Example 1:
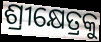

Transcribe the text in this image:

ଶ୍ରୀକ୍ଷେତ୍ରକୁ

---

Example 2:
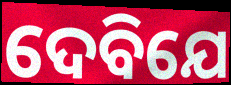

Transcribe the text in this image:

ଦେବିଯେ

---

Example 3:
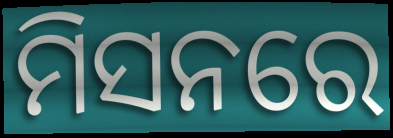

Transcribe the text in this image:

ମିସନରେ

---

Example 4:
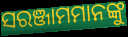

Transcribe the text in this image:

ସରଞ୍ଜାମମାନଙ୍କୁ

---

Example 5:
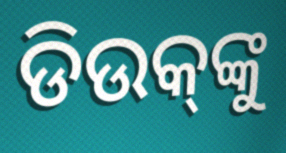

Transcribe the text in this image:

ଡିଉକ୍‌ଙ୍କୁ